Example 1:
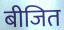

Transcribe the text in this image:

बीजित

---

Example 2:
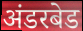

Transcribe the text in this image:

अंडरबेड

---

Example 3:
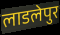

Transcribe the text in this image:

लाडलेपुर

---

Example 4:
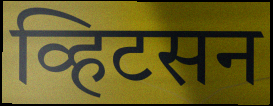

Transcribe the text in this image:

व्हिटसन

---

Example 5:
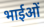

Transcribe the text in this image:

भाईओं